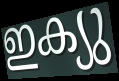
ഇക്യു